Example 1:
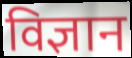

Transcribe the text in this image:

विज्ञान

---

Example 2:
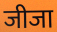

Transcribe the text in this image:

जीजा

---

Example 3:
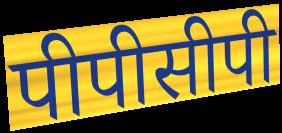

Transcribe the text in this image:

पीपीसीपी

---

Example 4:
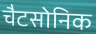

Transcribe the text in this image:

चैटसोनिक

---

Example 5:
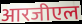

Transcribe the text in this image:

आरजीएल